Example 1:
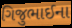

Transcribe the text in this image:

ગિજુભાઈના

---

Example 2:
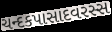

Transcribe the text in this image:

ચન્દકપાસાદવરસ્સ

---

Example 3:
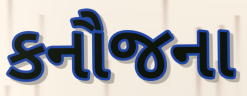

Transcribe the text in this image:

કનૌજના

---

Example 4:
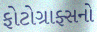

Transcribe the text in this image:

ફોટોગ્રાફ્સનો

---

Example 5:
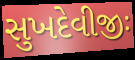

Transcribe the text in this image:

સુખદેવીજીઃ